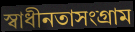
স্বাধীনতাসংগ্রাম